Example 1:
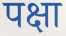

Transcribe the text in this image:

पक्षा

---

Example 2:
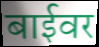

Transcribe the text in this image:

बाईवर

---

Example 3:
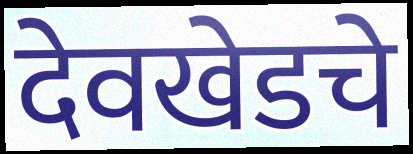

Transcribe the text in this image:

देवखेडचे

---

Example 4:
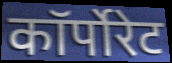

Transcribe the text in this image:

कॉर्पोरेट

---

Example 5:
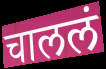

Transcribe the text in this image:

चाललं